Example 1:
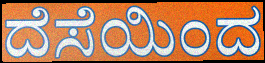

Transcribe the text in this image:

ದೆಸೆಯಿಂದ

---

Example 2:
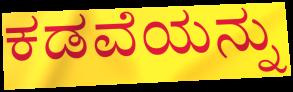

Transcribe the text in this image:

ಕಡವೆಯನ್ನು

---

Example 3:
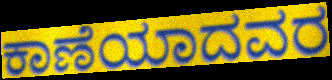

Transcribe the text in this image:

ಕಾಣೆಯಾದವರ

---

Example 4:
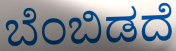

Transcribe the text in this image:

ಬೆಂಬಿಡದೆ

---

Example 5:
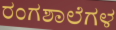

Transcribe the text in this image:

ರಂಗಶಾಲೆಗಳ